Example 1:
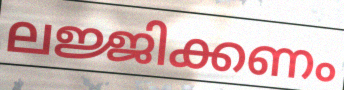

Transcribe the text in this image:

ലജ്ജിക്കണം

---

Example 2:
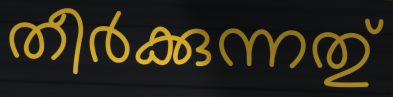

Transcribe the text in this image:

തീർക്കുന്നതു്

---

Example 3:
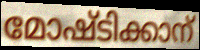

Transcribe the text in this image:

മോഷ്ടിക്കാന്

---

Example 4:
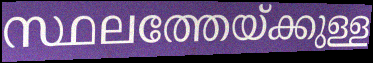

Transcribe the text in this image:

സ്ഥലത്തേയ്ക്കുള്ള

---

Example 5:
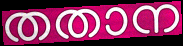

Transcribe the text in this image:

തതാന